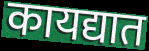
कायद्यात